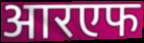
आरएफ